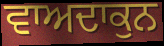
ਵਾਅਦਾਕੁਨ